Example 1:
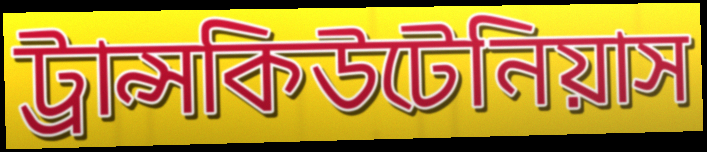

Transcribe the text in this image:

ট্রান্সকিউটেনিয়াস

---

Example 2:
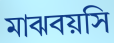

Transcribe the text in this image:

মাঝবয়সি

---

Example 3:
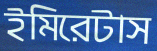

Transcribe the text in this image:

ইমিরেটাস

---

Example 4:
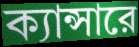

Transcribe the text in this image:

ক্যান্সারে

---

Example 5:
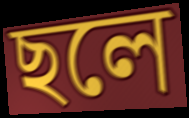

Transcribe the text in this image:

ছলে